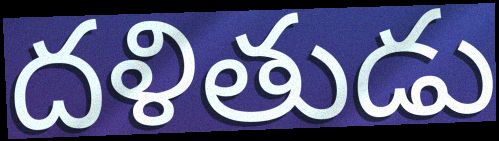
దళితుడు